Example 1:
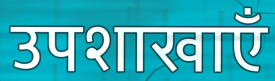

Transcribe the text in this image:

उपशाखाएँ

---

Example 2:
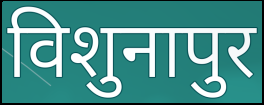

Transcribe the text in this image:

विशुनापुर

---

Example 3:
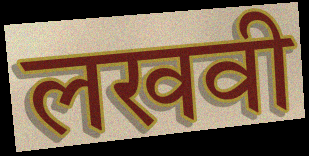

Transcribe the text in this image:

लखवी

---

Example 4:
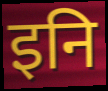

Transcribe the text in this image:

इनि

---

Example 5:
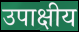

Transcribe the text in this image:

उपाक्षीय